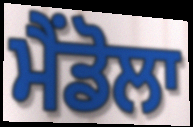
ਮੈਂਡੋਲਾ